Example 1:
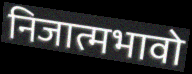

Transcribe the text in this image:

निजात्मभावो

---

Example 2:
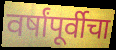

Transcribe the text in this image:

वर्षांपूर्वीचा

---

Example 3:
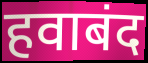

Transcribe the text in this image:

हवाबंद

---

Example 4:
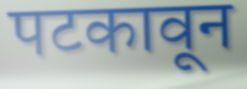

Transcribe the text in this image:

पटकावून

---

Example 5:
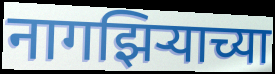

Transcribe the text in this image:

नागझिऱ्याच्या